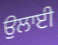
ਉਲਾਈ